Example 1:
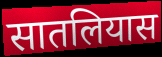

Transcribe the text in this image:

सातलियास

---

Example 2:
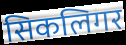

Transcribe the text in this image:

सिकलिगर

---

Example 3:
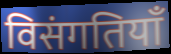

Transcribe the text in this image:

विसंगतियाँ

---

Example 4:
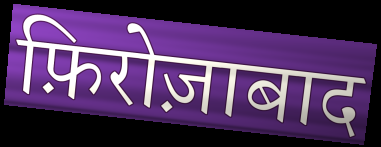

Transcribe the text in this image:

फ़िरोज़ाबाद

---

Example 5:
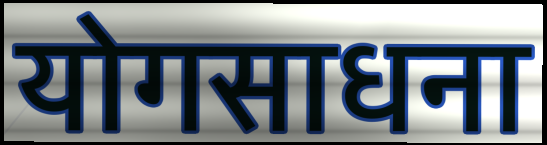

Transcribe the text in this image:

योगसाधना